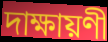
দাক্ষায়ণী